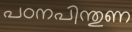
പഠനപിന്തുണ